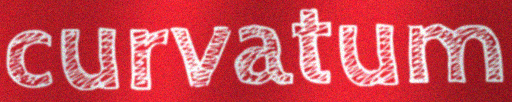
curvatum